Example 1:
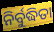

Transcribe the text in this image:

ନିର୍ବୁଦ୍ଧିତା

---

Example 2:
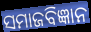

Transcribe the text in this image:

ସମାଜବିଜ୍ଞାନ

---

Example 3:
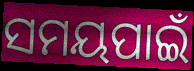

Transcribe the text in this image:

ସମୟପାଇଁ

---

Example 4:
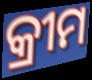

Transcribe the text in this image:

କ୍ରୀମ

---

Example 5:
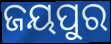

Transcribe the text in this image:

ଜୟପୁର